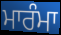
ਮਾਰੰਮਾ